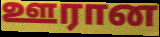
ஊரான